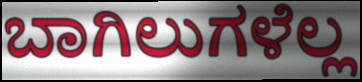
ಬಾಗಿಲುಗಳೆಲ್ಲ